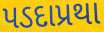
પડદાપ્રથા